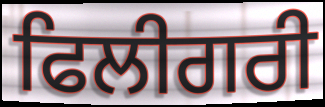
ਫਿਲੀਗਰੀ